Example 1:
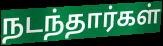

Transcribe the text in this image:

நடந்தார்கள்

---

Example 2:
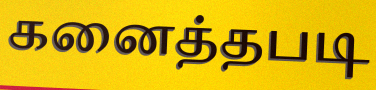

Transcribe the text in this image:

கனைத்தபடி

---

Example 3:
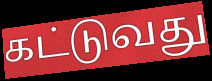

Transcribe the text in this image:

கட்டுவது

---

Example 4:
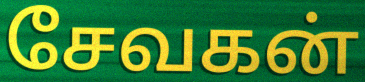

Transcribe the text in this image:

சேவகன்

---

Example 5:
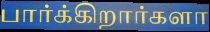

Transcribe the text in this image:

பார்க்கிறார்களா